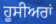
ਹੂਸੀਅਰਾਂ